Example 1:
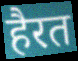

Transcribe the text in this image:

हैरत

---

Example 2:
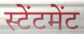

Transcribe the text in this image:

स्टेंटमेंट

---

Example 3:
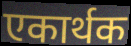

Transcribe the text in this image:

एकार्थक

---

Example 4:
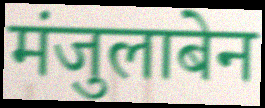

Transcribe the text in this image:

मंजुलाबेन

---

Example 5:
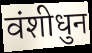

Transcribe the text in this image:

वंशीधुन